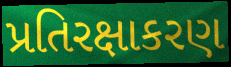
પ્રતિરક્ષાકરણ